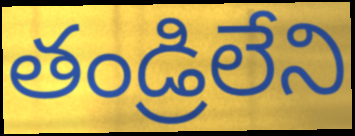
తండ్రిలేని